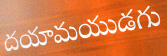
దయామయుడగు